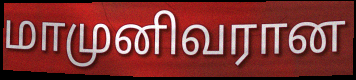
மாமுனிவரான